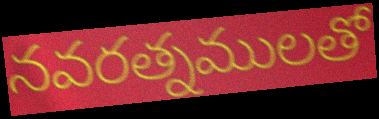
నవరత్నములతో